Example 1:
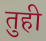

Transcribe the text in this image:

तुही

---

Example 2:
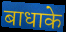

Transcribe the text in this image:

बाधाके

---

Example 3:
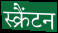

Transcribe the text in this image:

स्क्रैंटन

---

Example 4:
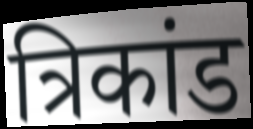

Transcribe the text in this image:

त्रिकांड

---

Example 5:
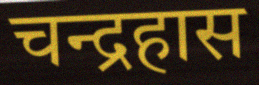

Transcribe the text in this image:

चन्द्रहास